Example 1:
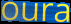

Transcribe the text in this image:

oura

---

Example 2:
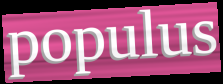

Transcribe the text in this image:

populus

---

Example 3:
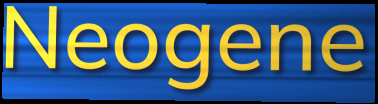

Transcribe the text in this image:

Neogene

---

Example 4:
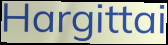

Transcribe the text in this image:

Hargittai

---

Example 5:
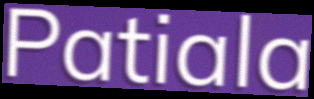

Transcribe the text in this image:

Patiala